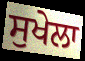
ਸੁਖੇਲਾ